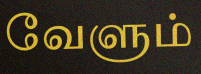
வேளும்